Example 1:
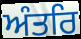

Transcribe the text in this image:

ਅੰਤਰਿ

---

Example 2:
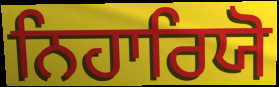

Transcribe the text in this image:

ਨਿਹਾਰਿਯੋ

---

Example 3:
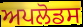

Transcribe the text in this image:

ਅਪਲੋਡਸ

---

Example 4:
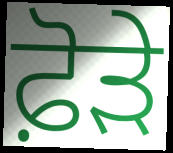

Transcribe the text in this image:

ਫ਼ੋੜੇ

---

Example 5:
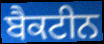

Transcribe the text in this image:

ਬੈਕਟੀਨ